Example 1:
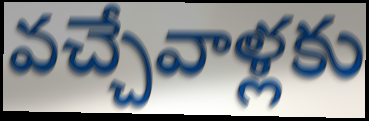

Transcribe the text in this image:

వచ్చేవాళ్లకు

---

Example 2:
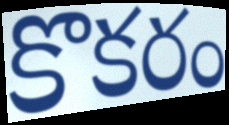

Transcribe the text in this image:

కొకరం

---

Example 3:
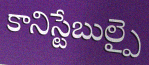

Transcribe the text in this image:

కానిస్టేబుల్పై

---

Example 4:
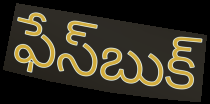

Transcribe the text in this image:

ఫేస్‌బుక్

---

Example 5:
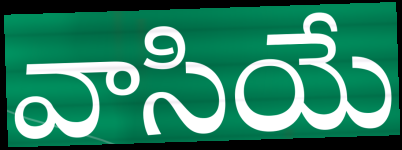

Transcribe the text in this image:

వాసియే